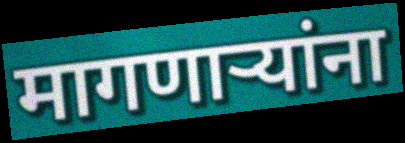
मागणार्‍यांना